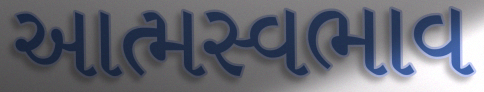
આત્મસ્વભાવ